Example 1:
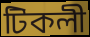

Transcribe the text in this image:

টিকলী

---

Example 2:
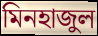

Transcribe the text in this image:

মিনহাজুল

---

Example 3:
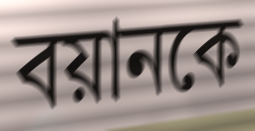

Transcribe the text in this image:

বয়ানকে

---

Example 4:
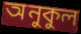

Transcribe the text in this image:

অনুকুল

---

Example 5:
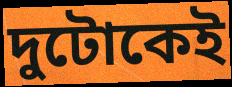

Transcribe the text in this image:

দুটোকেই